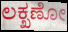
ಲಕ್ಖಣೋ